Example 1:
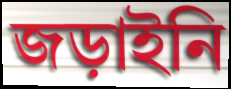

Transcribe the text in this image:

জড়াইনি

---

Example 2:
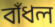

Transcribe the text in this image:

বাঁধল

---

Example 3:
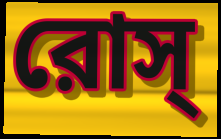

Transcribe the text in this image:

রোস্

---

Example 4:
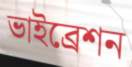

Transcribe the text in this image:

ভাইব্রেশন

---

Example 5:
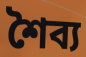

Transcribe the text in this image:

শৈব্য